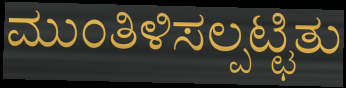
ಮುಂತಿಳಿಸಲ್ಪಟ್ಟಿತು